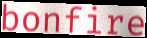
bonfire